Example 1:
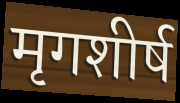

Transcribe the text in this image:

मृगशीर्ष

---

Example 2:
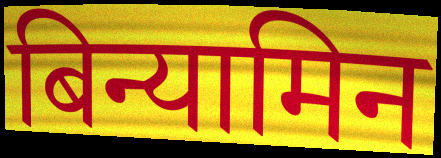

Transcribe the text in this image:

बिन्यामिन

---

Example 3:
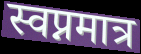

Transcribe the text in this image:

स्वप्नमात्र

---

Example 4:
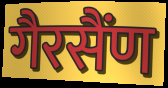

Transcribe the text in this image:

गैरसैंण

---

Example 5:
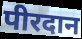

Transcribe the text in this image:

पीरदान